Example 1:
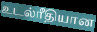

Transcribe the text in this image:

உடல்ரீதியான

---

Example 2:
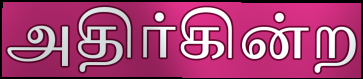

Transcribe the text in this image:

அதிர்கின்ற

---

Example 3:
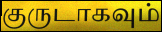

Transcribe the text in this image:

குருடாகவும்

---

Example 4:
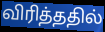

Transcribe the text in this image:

விரித்ததில்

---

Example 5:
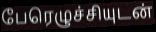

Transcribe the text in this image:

பேரெழுச்சியுடன்